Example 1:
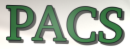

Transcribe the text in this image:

PACS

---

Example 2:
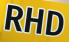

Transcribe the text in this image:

RHD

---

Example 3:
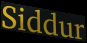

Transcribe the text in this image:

Siddur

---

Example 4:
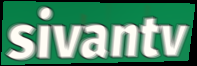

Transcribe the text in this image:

sivantv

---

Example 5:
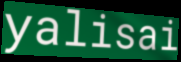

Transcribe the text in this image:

yalisai